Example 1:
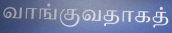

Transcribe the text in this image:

வாங்குவதாகத்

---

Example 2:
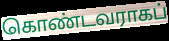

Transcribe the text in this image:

கொண்டவராகப்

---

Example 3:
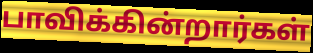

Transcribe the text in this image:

பாவிக்கின்றார்கள்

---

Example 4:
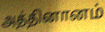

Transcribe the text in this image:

அத்தினானம்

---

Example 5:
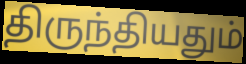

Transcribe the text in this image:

திருந்தியதும்